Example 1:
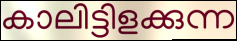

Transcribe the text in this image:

കാലിട്ടിളക്കുന്ന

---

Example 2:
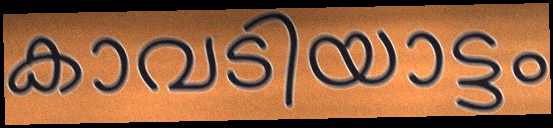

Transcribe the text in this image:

കാവടിയാട്ടം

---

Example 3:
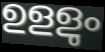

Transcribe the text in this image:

ഉളളും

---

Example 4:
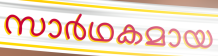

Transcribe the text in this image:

സാർഥകമായ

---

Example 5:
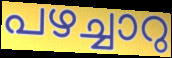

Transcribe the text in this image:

പഴച്ചാറു